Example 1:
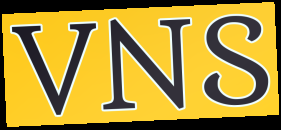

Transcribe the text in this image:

VNS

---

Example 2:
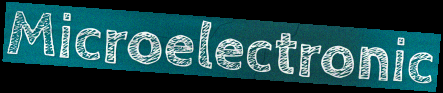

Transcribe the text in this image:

Microelectronic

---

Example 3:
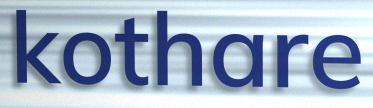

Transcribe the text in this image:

kothare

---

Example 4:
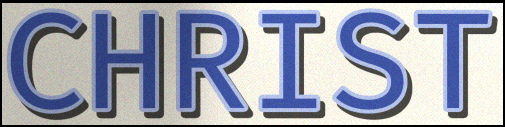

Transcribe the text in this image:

CHRIST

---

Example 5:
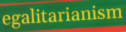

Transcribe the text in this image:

egalitarianism